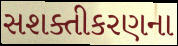
સશક્તીકરણના